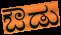
ಔಡು